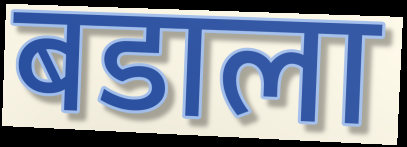
बडाला